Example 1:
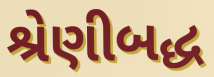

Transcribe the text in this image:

શ્રેણીબદ્ધ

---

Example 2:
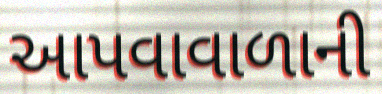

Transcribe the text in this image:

આપવાવાળાની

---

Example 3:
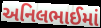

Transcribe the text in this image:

અનિલભાઈમાં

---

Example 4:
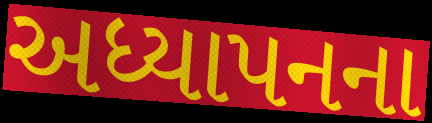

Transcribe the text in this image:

અધ્યાપનના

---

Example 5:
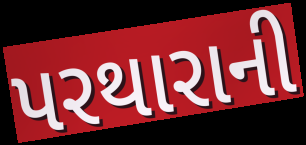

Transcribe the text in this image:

પરથારાની